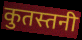
कुतस्तनी